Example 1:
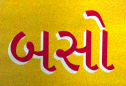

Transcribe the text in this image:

બસો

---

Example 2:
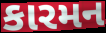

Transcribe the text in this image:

કારમન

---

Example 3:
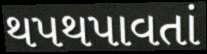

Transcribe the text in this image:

થપથપાવતાં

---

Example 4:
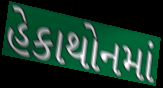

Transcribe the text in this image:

હેકાથોનમાં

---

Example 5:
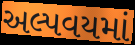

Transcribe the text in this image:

અલ્પવયમાં